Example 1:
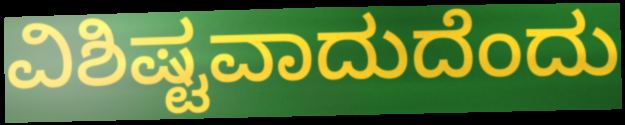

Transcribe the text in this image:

ವಿಶಿಷ್ಟವಾದುದೆಂದು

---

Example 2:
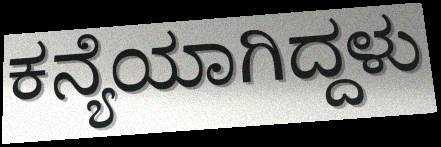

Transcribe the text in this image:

ಕನ್ಯೆಯಾಗಿದ್ದಳು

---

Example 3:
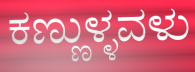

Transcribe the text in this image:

ಕಣ್ಣುಳ್ಳವಳು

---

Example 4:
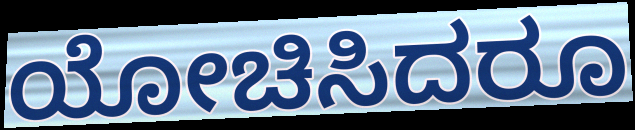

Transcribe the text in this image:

ಯೋಚಿಸಿದರೂ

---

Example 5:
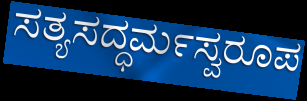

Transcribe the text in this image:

ಸತ್ಯಸದ್ಧರ್ಮಸ್ವರೂಪ